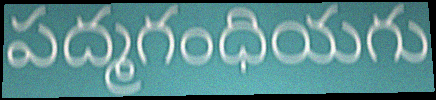
పద్మగంధియగు